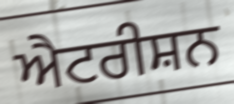
ਐਟਰੀਸ਼ਨ